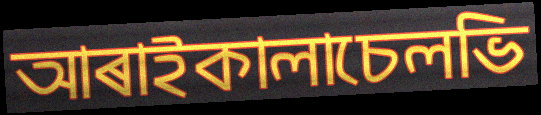
আৰাইকালাচেলভি